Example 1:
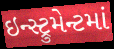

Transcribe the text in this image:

ઇન્સ્ટ્રુમેન્ટમાં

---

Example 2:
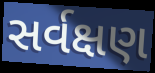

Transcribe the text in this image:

સર્વક્ષણ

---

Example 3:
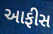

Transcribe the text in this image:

આફીસ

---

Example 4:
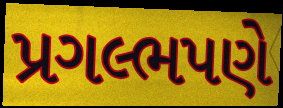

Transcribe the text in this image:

પ્રગલ્ભપણે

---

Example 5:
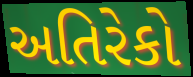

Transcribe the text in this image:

અતિરેકો